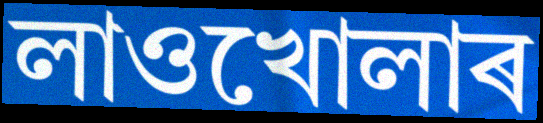
লাওখোলাৰ